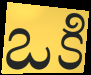
ఒకి